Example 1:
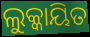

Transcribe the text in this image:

ଲୁକ୍କାୟିତ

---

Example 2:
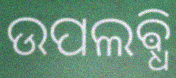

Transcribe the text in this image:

ଉପଲଵ୍ଧି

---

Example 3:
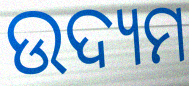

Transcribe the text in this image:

ଉଦ୍ୟମ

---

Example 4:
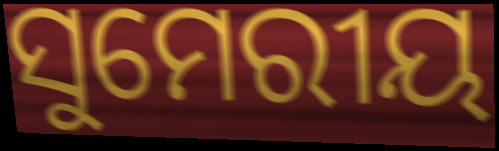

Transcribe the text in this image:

ସୁମେରୀୟ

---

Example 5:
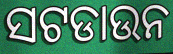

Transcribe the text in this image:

ସଟଡାଉନ